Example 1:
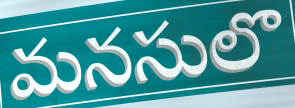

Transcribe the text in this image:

మనసులొ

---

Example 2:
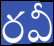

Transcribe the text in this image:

రవీ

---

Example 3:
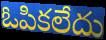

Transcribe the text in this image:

ఓపికలేదు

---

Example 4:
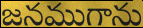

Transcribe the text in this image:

జనముగాను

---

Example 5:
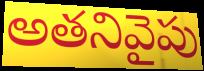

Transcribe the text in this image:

అతనివైపు